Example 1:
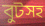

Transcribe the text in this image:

বুটসহ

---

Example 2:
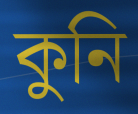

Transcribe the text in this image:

কুনি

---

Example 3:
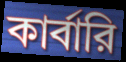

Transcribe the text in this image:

কার্বারি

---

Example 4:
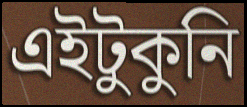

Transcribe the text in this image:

এইটুকুনি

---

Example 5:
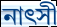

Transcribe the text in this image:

নাৎসী